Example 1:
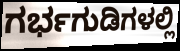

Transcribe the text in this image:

ಗರ್ಭಗುಡಿಗಳಲ್ಲಿ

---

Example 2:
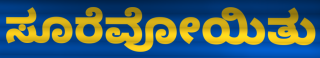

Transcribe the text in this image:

ಸೂರೆವೋಯಿತು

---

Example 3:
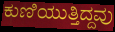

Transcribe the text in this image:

ಕುಣಿಯುತ್ತಿದ್ದವು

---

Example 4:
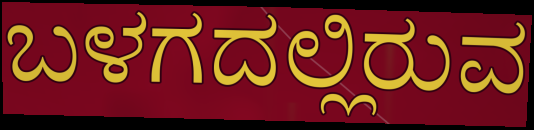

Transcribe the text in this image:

ಬಳಗದಲ್ಲಿರುವ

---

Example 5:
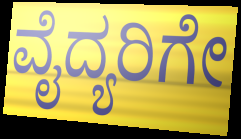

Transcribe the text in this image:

ವೈದ್ಯರಿಗೇ